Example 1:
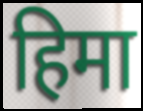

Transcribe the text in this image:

हिमा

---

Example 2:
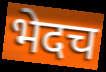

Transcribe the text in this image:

भेदच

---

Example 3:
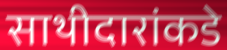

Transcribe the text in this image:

साथीदारांकडे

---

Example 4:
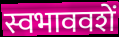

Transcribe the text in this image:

स्वभाववशें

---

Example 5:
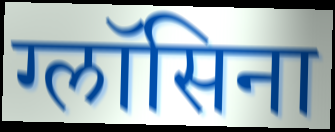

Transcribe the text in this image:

ग्लॉसिना